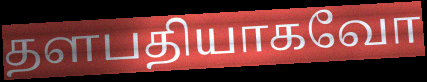
தளபதியாகவோ